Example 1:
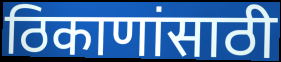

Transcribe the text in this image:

ठिकाणांसाठी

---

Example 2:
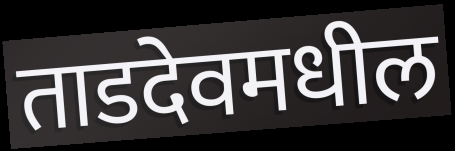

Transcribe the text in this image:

ताडदेवमधील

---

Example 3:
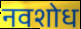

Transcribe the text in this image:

नवशोध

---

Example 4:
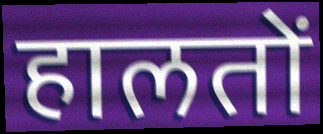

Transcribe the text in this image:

हालतों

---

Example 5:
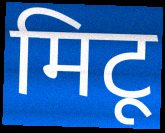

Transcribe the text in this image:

मिटू